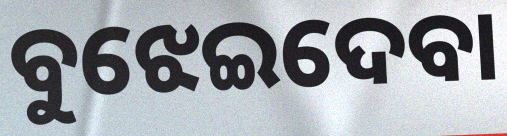
ବୁଝେଇଦେବା